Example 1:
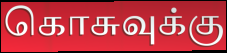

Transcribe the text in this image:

கொசுவுக்கு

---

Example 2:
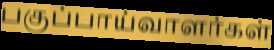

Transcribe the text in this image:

பகுப்பாய்வாளர்கள்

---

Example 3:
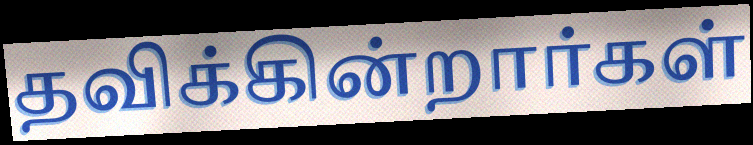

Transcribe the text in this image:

தவிக்கின்றார்கள்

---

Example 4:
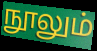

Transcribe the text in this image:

நூலும்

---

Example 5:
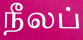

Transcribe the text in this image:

நீலப்